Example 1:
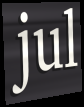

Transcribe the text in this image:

jul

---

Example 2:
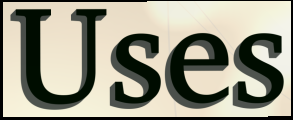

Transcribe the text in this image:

Uses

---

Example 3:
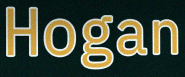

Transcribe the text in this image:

Hogan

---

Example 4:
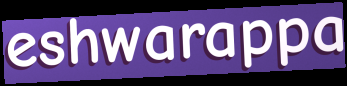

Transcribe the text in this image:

eshwarappa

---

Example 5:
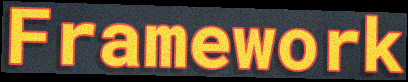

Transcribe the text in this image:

Framework